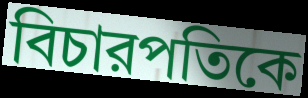
বিচারপতিকে